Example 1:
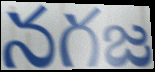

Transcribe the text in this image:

నగజ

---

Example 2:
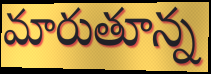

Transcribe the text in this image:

మారుతూన్న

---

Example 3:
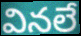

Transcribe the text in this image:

వినలే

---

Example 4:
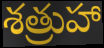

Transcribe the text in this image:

శత్రుహా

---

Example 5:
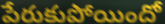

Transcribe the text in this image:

పేరుకుపోయిందో